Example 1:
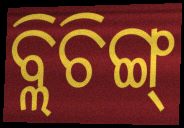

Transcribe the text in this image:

ବ୍ଲିଚିଙ୍ଗ୍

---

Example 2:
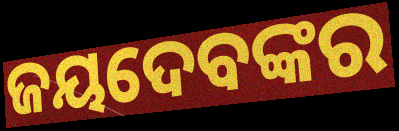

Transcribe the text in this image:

ଜୟଦେବଙ୍କର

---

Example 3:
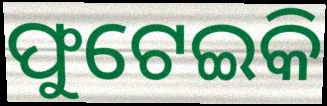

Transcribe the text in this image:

ଫୁଟେଇକି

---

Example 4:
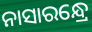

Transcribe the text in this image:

ନାସାରନ୍ଧ୍ରେ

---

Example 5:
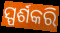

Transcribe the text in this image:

ସ୍ପର୍ଶକରି